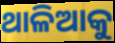
ଥାଳିଆକୁ